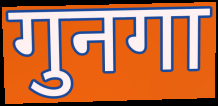
गुनगा